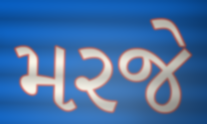
મરજે